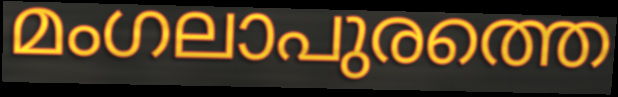
മംഗലാപുരത്തെ